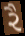
રૈ